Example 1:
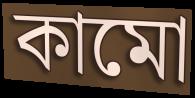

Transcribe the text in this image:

কামো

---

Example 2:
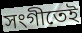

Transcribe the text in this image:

সংগীতেই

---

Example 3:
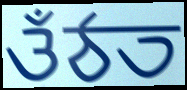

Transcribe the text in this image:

ওঁঠত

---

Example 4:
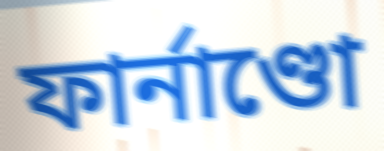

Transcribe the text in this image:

ফাৰ্নাণ্ডো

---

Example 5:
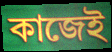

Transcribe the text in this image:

কাজেই